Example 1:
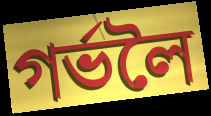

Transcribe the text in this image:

গৰ্ভলৈ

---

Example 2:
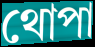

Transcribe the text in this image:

থোপা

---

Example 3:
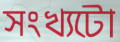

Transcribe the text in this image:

সংখ্যটো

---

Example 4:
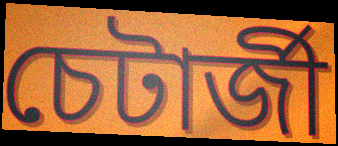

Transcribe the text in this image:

চেটাৰ্জী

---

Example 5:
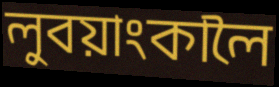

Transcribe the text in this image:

লুবয়াংকালৈ